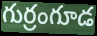
గుర్రంగూడ